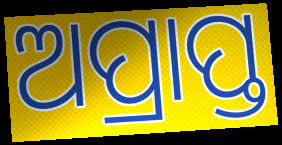
ଅପ୍ରାପ୍ତ